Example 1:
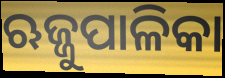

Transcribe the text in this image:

ଋଜ୍ଜୁପାଳିକା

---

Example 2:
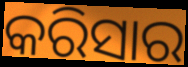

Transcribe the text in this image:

କରିସାର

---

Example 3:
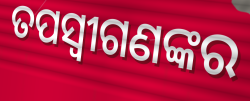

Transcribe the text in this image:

ତପସ୍ୱୀଗଣଙ୍କର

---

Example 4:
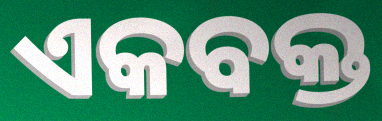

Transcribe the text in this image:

ଏକବକ୍ତ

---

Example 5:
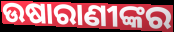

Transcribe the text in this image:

ଉଷାରାଣୀଙ୍କର